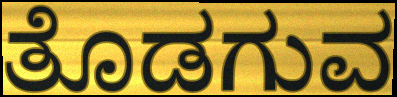
ತೊಡಗುವ